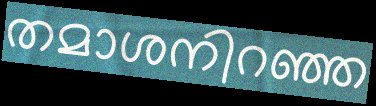
തമാശനിറഞ്ഞ